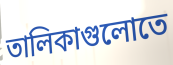
তালিকাগুলোতে